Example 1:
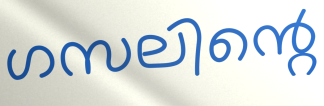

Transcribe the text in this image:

ഗസലിന്റെ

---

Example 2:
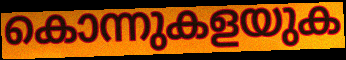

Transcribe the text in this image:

കൊന്നുകളയുക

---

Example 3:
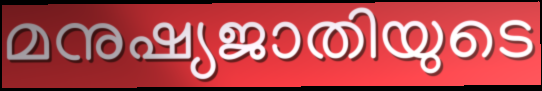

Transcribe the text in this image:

മനുഷ്യജാതിയുടെ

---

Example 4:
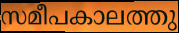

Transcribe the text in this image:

സമീപകാലത്തു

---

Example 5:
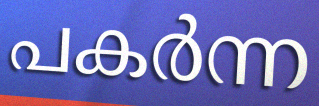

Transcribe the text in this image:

പകർന്ന